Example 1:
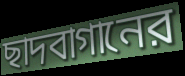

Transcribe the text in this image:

ছাদবাগানের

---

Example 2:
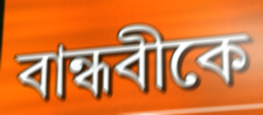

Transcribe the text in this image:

বান্ধবীকে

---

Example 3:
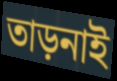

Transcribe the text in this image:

তাড়নাই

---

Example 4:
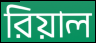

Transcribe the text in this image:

রিয়াল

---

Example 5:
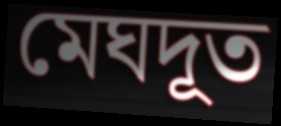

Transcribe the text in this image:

মেঘদূত